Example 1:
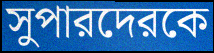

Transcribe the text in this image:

সুপারদেরকে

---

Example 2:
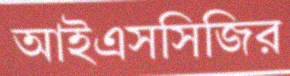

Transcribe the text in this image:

আইএসসিজির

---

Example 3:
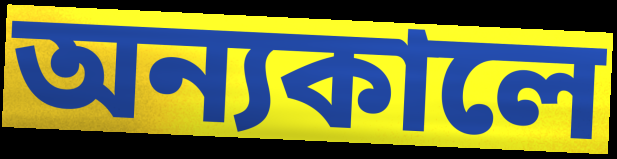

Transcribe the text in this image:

অন্যকালে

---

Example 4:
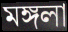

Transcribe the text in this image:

মঙ্গলা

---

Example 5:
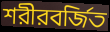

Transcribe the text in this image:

শরীরবর্জিত